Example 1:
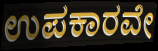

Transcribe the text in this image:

ಉಪಕಾರವೇ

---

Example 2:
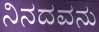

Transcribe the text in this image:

ನಿನದವನು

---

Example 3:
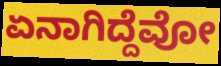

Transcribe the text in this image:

ಏನಾಗಿದ್ದೆವೋ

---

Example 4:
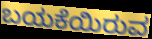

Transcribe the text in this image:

ಬಯಕೆಯಿರುವ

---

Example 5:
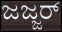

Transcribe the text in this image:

ಜಜ್ಜರ್